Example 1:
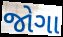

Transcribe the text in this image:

જોગા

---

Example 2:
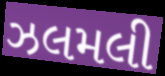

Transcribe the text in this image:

ઝલમલી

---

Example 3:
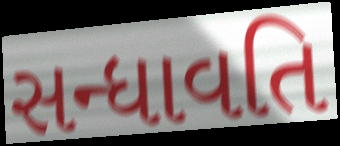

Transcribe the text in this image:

સન્ધાવતિ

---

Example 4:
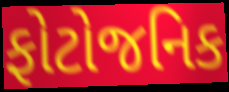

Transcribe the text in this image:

ફોટોજનિક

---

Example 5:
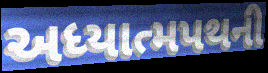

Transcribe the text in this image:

અધ્યાત્મપથની